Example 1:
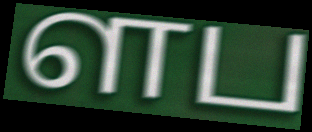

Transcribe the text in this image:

ளப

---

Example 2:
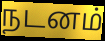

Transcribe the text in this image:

நடனம்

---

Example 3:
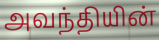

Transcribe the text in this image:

அவந்தியின்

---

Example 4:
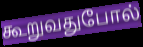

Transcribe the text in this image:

கூறுவதுபோல்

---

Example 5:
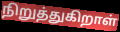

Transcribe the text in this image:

நிறுத்துகிறாள்